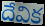
దేవిక